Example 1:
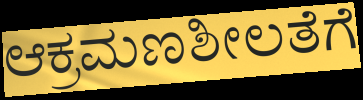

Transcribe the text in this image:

ಆಕ್ರಮಣಶೀಲತೆಗೆ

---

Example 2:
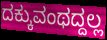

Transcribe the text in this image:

ದಕ್ಕುವಂಥದ್ದಲ್ಲ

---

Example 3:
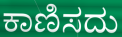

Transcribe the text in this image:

ಕಾಣಿಸದು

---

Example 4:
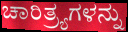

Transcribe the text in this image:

ಚಾರಿತ್ರ್ಯಗಳನ್ನು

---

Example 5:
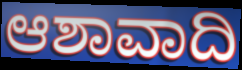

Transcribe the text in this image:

ಆಶಾವಾದಿ